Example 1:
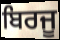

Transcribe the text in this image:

ਬਿਰਜੂ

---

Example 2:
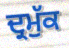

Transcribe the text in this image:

ਦ੍ਰਮੁੱਕ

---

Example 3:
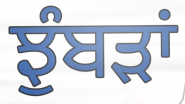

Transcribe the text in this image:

ਝੁੰਬੜਾਂ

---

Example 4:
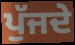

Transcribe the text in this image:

ਪੁੱਜਦੇ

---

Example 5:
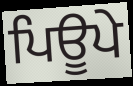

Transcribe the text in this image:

ਪਿਊਪੇ